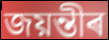
জয়ন্তীৰ